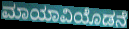
ಮಾಯಾವಿಯೊಡನೆ